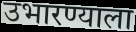
उभारण्याला